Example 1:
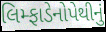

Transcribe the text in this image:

લિમ્ફાડેનોપેથીનું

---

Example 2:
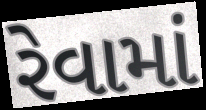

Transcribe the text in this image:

રેવામાં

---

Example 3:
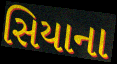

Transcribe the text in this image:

સિયાના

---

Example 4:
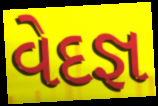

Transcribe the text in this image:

વેદજ્ઞ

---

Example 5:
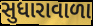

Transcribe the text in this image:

સુધારાવાળા